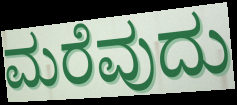
ಮರೆವುದು